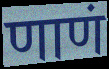
णाणं